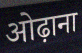
ओढ़ाना